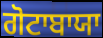
ਗੋਟਾਬਾਯਾ